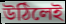
উঠিলেই